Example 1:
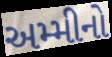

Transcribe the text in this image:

અમ્મીનો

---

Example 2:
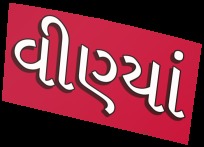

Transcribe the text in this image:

વીણ્યાં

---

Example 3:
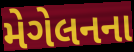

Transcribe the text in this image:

મેગેલનના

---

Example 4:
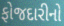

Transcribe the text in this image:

ફોજદારીનો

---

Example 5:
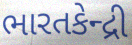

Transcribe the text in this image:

ભારતકેન્દ્રી